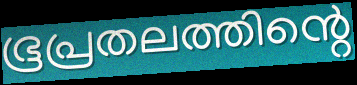
ഭൂപ്രതലത്തിന്റെ